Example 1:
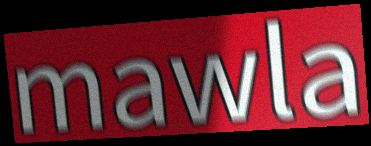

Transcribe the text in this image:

mawla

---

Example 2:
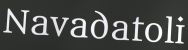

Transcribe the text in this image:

Navadatoli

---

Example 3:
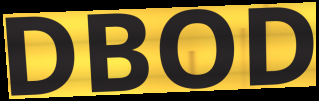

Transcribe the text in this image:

DBOD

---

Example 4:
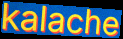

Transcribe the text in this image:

kalache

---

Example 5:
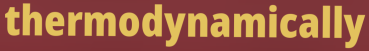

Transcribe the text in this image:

thermodynamically